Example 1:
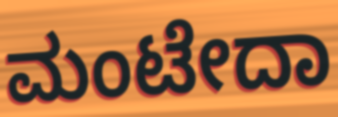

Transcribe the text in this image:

ಮಂಟೇದಾ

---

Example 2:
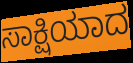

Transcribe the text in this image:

ಸಾಕ್ಷಿಯಾದ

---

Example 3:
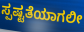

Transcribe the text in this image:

ಸ್ಪಷ್ಟತೆಯಾಗಲೀ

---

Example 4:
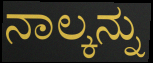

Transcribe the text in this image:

ನಾಲ್ಕನ್ನು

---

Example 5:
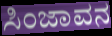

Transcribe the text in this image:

ಸಿಂಜಾವನ